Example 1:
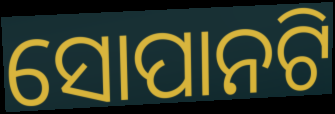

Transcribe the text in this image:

ସୋପାନଟି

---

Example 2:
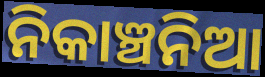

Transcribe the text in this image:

ନିକାଞ୍ଚନିଆ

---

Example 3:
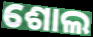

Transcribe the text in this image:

ଶୋଲ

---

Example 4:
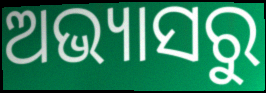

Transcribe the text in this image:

ଅଭ୍ୟାସରୁ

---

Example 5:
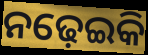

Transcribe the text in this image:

ନଢ଼େଇକି